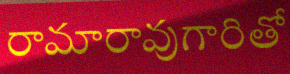
రామారావుగారితో